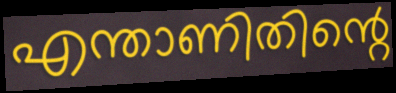
എന്താണിതിന്റെ